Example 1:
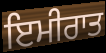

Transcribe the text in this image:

ਇਮੀਰਾਤ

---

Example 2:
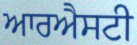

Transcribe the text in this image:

ਆਰਐਸਟੀ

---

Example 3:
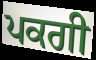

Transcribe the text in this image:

ਪਕਗੀ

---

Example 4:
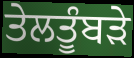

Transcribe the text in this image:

ਤੇਲਤੂੰਬੜੇ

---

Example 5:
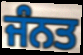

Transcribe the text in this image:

ਜੰਨਤ